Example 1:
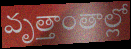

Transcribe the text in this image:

వృత్తాంతాల్లో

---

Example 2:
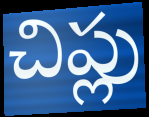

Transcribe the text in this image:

చిప్లు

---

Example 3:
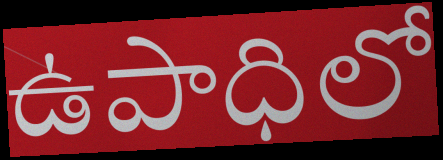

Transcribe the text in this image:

ఉపాధిలో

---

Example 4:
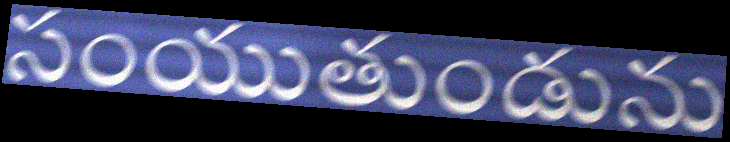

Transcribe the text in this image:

సంయుతుండును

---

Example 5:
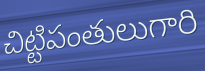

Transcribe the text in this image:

చిట్టిపంతులుగారి